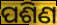
ପଶିଣ